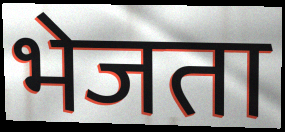
भेजता